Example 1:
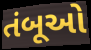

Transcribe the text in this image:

તંબૂઓ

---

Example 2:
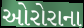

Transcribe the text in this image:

ઓરોરાના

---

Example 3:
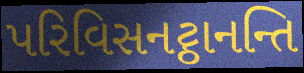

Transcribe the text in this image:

પરિવિસનટ્ઠાનન્તિ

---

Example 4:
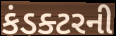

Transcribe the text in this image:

કંડક્ટરની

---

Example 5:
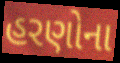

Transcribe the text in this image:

હરણોના